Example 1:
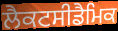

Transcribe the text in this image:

ਲੈਕਟਸੀਡੈਮਿਕ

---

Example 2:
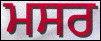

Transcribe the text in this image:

ਮਸਰ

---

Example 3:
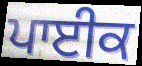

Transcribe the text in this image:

ਪਾਈਕ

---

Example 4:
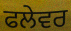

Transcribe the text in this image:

ਫਲੇਵਰ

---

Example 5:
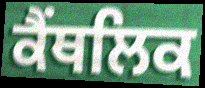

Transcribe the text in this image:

ਕੈਂਥਲਿਕ